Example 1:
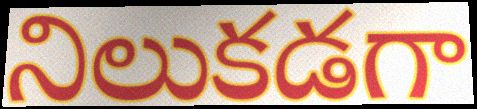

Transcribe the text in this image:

నిలుకడగా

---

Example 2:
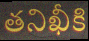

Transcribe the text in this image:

తనిఖీకి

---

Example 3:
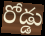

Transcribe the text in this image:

రోడ్డు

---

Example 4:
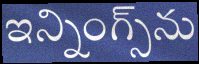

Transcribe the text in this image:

ఇన్నింగ్స్‌ను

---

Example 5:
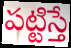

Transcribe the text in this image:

పట్టిస్తే